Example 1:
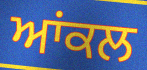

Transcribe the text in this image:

ਆਂਕਲ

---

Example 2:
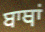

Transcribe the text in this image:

ਬਾਥਾਂ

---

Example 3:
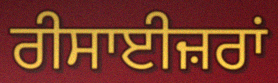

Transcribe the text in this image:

ਰੀਸਾਈਜ਼ਰਾਂ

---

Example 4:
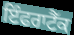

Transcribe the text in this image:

ਇੰਫਰਾਟੈੱਕ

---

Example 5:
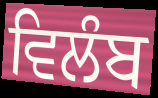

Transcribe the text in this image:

ਵਿਲੰਬ